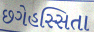
છગેહસ્સિતા